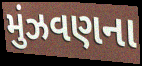
મુંઝવણના